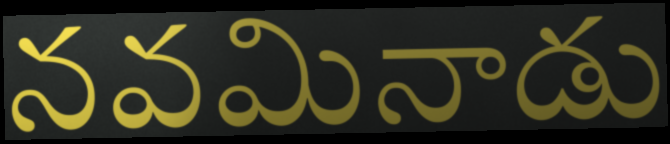
నవమినాడు